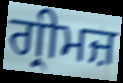
ਗ੍ਰੀਮਜ਼